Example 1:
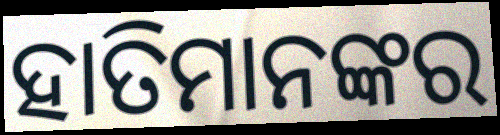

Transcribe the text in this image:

ହାତିମାନଙ୍କର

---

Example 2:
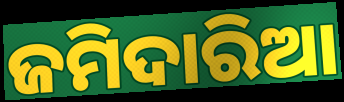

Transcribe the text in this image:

ଜମିଦାରିଆ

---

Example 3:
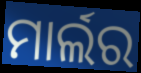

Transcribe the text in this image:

ମାର୍ଲର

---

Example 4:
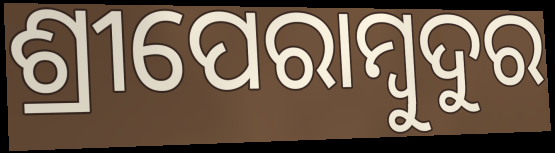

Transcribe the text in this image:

ଶ୍ରୀପେରାମ୍ବୁଦୁର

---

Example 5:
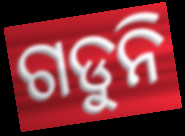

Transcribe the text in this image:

ଗଡୁନି